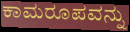
ಕಾಮರೂಪವನ್ನು